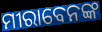
ମୀରାବେନଙ୍କ